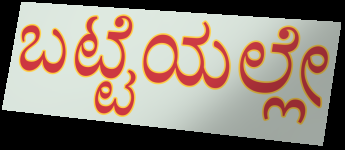
ಬಟ್ಟೆಯಲ್ಲೇ